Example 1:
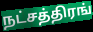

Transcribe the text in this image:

நட்சத்திரங்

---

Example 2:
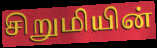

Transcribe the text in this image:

சிறுமியின்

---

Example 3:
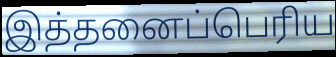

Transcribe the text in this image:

இத்தனைப்பெரிய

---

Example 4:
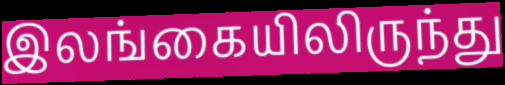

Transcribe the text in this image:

இலங்கையிலிருந்து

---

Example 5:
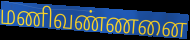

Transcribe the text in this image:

மணிவண்ணனை